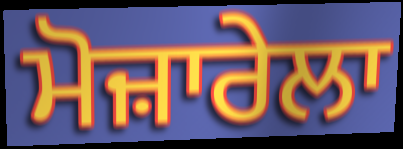
ਮੋਜ਼ਾਰੇਲਾ